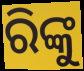
ରିଙ୍କୁ